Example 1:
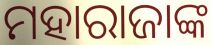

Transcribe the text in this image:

ମହାରାଜାଙ୍କ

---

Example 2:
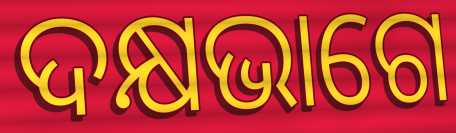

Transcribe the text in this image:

ଦକ୍ଷଭାଗେ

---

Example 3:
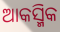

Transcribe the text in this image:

ଆକସ୍ମିକ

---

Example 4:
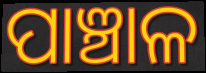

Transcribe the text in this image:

ପାଞ୍ଚାଳ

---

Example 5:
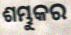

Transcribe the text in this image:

ଶମ୍ଭୁକର